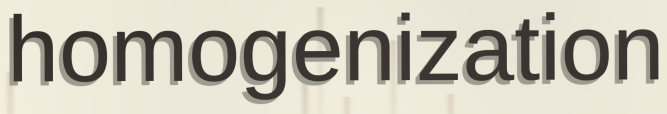
homogenization